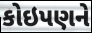
કોઇપણને